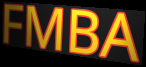
FMBA